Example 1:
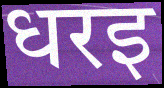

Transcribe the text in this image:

धरइ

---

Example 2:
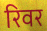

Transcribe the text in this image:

रिवर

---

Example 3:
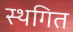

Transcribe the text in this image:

स्थगित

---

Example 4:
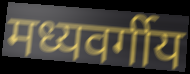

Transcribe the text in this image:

मध्यवर्गीय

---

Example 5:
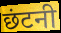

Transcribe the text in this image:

छंटनी